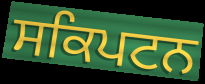
ਸਕਿਪਟਨ